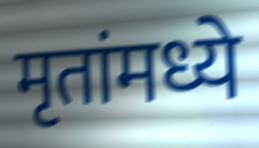
मृतांमध्ये